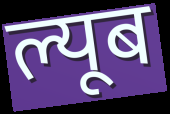
ल्यूब